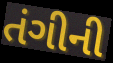
તંગીની